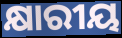
କ୍ଷାରୀୟ